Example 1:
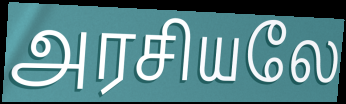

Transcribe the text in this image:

அரசியலே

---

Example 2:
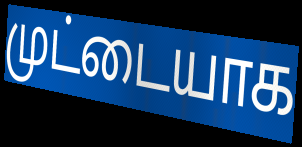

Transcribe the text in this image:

முட்டையாக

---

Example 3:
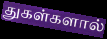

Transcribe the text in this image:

துகள்களால்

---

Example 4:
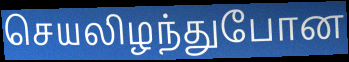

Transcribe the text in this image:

செயலிழந்துபோன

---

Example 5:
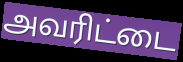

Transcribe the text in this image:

அவரிட்டை